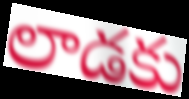
లాడకు